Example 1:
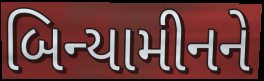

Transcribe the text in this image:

બિન્યામીનને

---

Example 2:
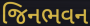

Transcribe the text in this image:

જિનભવન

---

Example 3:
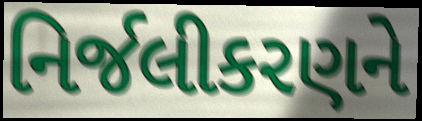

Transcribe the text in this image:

નિર્જલીકરણને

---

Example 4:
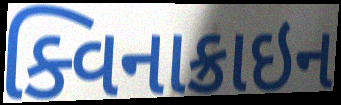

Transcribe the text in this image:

ક્વિનાક્રાઇન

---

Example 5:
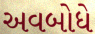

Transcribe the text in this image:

અવબોધે